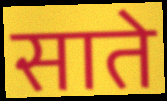
साते